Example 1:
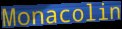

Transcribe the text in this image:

Monacolin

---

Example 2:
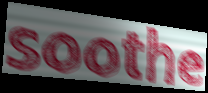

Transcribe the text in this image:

soothe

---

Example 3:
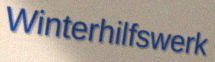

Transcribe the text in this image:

Winterhilfswerk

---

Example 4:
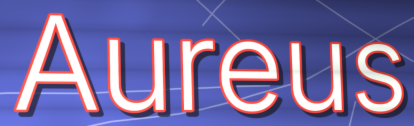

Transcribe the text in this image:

Aureus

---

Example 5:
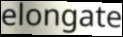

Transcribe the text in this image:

elongate